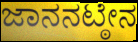
ಜಾನನಟ್ಠೇನ